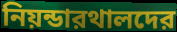
নিয়ন্ডারথালদের